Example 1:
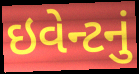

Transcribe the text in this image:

ઇવેન્ટનું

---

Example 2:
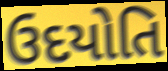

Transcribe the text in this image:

ઉદયોતિ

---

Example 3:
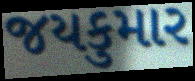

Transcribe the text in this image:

જયકુમાર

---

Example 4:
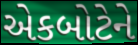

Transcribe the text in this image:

એકબોટેને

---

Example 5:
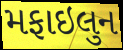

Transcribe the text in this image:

મફાઇલુન